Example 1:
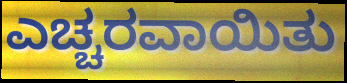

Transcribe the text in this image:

ಎಚ್ಚರವಾಯಿತು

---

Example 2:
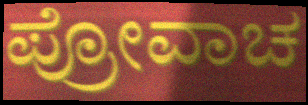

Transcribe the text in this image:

ಪ್ರೋವಾಚ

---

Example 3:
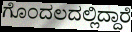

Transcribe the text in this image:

ಗೊಂದಲದಲ್ಲಿದ್ದಾರೆ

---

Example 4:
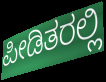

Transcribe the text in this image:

ಪೀಡಿತರಲ್ಲಿ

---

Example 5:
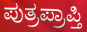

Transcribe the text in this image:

ಪುತ್ರಪ್ರಾಪ್ತಿ